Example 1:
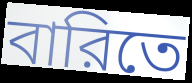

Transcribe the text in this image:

বারিতে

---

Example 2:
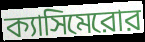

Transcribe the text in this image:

ক্যাসিমেরোর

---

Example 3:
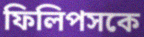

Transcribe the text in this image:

ফিলিপসকে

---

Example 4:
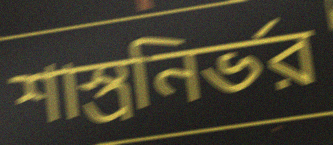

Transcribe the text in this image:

শাস্ত্রনির্ভর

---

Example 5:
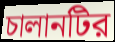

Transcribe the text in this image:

চালানটির